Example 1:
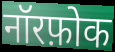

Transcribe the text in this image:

नॉरफ़ोक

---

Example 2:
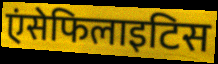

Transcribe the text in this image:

एंसेफिलाइटिस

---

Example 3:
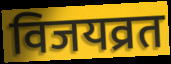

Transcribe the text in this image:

विजयव्रत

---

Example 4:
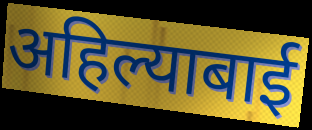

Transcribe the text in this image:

अहिल्याबाई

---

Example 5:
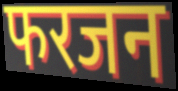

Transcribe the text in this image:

फरजन